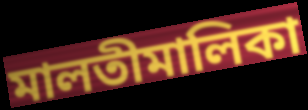
মালতীমালিকা